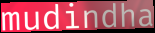
mudindha